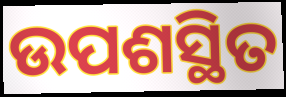
ଉପଶସ୍ଥିତ